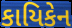
કાયિકેન